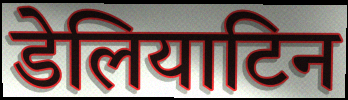
डेलियाटिन